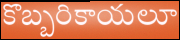
కొబ్బరికాయలూ